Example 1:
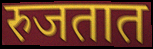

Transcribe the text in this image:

रुजतात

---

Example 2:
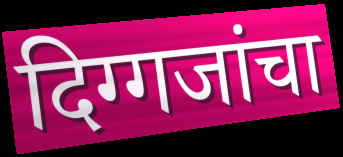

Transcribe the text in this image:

दिग्गजांचा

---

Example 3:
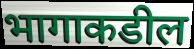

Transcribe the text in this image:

भागाकडील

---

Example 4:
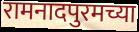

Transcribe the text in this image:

रामनादपुरमच्या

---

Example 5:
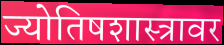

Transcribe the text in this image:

ज्योतिषशास्त्रावर